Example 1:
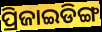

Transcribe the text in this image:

ପ୍ରିଜାଇଡିଙ୍ଗ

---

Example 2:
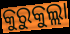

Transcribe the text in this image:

କୁରୁକୁଲ୍ଲା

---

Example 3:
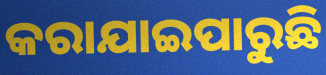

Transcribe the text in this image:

କରାଯାଇପାରୁଛି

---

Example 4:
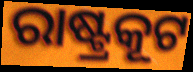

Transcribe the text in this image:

ରାଷ୍ଟ୍ରକୂଟ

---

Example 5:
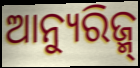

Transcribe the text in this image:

ଆନ୍ୟୁରିଜ୍ମ୍